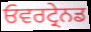
ਓਵਰਟ੍ਰੇਨਡ